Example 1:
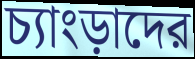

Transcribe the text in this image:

চ্যাংড়াদের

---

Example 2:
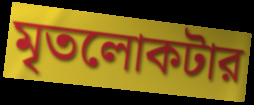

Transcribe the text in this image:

মৃতলোকটার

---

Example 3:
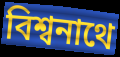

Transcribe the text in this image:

বিশ্বনাথে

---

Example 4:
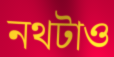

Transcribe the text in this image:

নথটাও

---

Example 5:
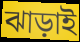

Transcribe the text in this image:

ঝাড়াই